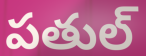
పతుల్